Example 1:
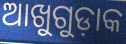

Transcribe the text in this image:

ଆଖୁଗୁଡ଼ାକ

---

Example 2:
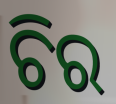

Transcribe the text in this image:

ଚିର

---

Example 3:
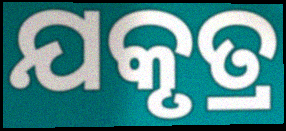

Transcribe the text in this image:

ଯକୃତ୍ର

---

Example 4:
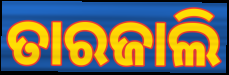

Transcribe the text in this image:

ତାରଜାଲି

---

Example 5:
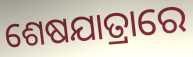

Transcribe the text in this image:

ଶେଷଯାତ୍ରାରେ